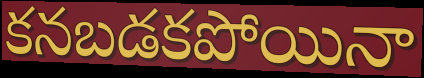
కనబడకపోయినా